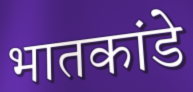
भातकांडे